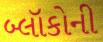
બ્લૉકોની